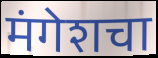
मंगेशचा